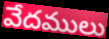
వేదములు